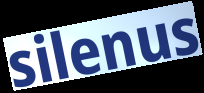
silenus